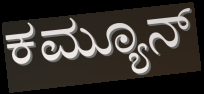
ಕಮ್ಯೂನ್